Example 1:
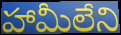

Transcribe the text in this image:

హామీలేని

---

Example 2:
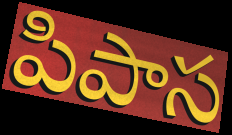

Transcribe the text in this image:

పిపాస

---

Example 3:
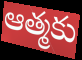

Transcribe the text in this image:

ఆత్మకు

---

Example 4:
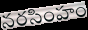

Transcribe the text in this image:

నరసింహం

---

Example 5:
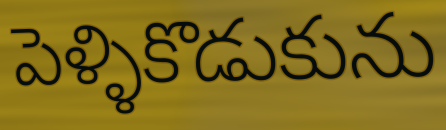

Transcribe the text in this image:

పెళ్ళికొడుకును